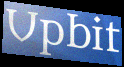
Upbit